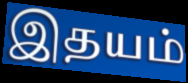
இதயம்